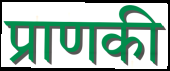
प्राणकी